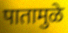
पातामुळे